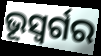
ଭୂସ୍ବର୍ଗର